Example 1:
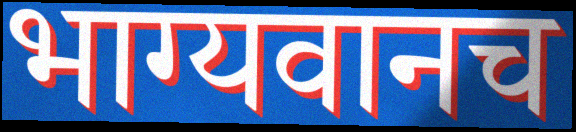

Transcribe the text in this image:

भाग्यवानच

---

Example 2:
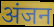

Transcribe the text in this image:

अंजन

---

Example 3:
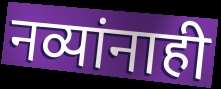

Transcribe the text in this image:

नव्यांनाही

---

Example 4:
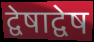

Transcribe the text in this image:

द्वेषाद्वेष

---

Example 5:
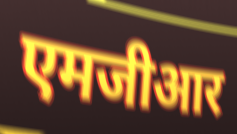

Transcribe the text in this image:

एमजीआर